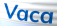
Vaca